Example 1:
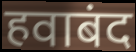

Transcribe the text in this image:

हवाबंद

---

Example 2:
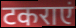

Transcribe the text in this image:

टकराएं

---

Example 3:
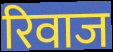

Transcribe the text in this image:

रिवाज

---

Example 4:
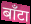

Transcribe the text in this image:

बाँटा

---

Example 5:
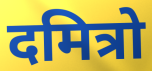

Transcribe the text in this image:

दमित्रो